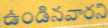
ఉండినవారని